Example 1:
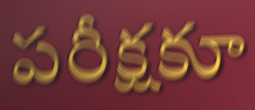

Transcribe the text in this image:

పరీక్షకూ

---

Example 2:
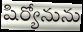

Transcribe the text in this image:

షిర్యోనును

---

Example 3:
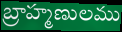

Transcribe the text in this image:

బ్రాహ్మణులము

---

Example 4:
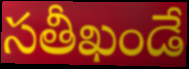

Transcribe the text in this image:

సతీఖండే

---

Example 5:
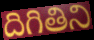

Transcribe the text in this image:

దిగితిని